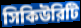
সিকিউরিটি